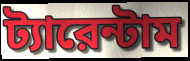
ট্যারেন্টাম